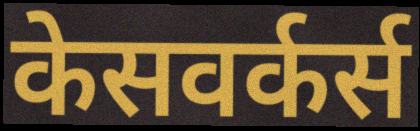
केसवर्कर्स